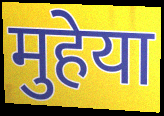
मुहेया